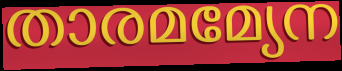
താരമമ്യേന